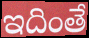
ఇదింతే